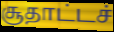
சூதாட்டச்